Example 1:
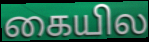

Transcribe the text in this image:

கையில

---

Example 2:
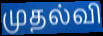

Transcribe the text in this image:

முதல்வி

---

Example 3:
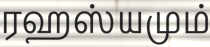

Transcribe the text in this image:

ரஹஸ்யமும்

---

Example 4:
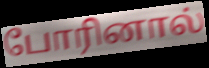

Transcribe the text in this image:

போரினால்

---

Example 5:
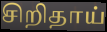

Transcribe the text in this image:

சிறிதாய்